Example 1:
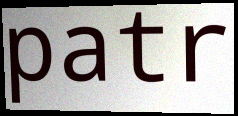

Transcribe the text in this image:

patr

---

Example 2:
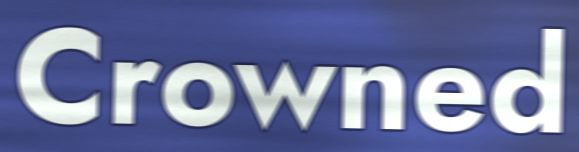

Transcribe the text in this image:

Crowned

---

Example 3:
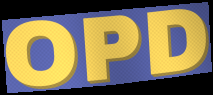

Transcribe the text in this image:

OPD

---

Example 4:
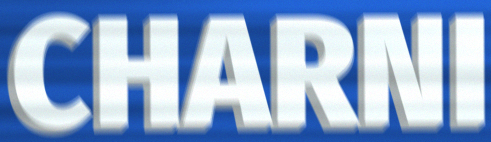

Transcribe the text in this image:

CHARNI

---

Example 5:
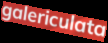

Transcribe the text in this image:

galericulata